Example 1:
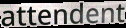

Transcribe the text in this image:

attendent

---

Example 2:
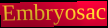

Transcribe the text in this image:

Embryosac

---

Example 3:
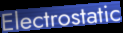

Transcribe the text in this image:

Electrostatic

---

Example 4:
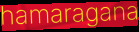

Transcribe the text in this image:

hamaragana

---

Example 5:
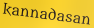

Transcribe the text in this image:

kannadasan